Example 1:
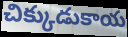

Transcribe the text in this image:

చిక్కుడుకాయ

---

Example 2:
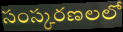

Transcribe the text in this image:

సంస్కరణలలో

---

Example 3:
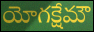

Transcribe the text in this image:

యోగక్షేమౌ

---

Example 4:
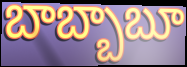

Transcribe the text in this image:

బాబ్బాబూ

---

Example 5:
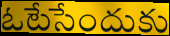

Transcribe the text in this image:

ఓటేసేందుకు